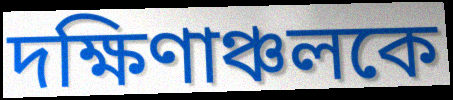
দক্ষিণাঞ্চলকে